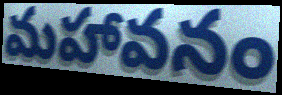
మహావనం